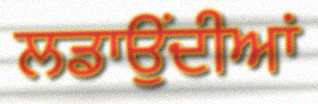
ਲਡਾਉਂਦੀਆਂ